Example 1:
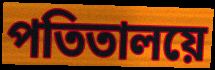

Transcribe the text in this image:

পতিতালয়ে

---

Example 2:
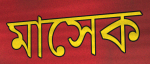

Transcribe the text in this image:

মাসেক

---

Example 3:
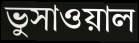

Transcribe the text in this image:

ভুসাওয়াল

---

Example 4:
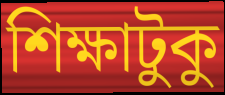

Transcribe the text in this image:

শিক্ষাটুকু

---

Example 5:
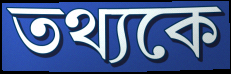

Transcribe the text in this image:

তথ্যকে